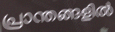
പ്രാന്തങ്ങളിൽ